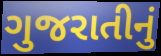
ગુજરાતીનું